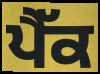
ਪੈੱਕ